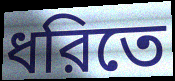
ধরিতে